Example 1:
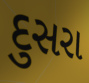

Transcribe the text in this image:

દુસરા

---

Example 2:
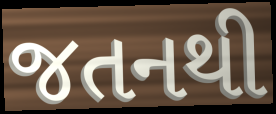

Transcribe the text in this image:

જતનથી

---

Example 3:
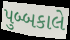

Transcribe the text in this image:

પુબ્બકાલે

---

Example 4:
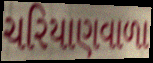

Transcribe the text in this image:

ચરિયાણવાળા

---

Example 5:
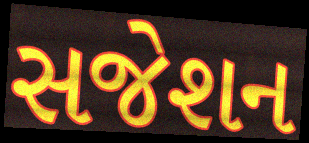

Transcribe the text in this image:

સજેશન